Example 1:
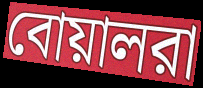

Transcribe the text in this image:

বোয়ালরা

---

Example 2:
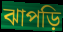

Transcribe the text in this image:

ঝাপড়ি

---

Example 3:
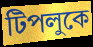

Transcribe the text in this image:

টিপলুকে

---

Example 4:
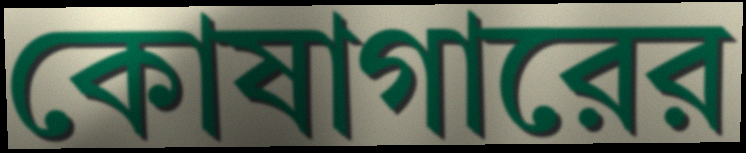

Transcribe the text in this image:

কোষাগারের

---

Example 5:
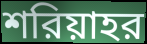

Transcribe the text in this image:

শরিয়াহর